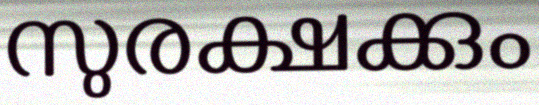
സുരക്ഷക്കും